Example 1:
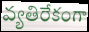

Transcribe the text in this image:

వ్యతిరేకంగా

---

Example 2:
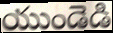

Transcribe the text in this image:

యుండెడి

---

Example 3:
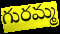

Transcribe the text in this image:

గురమ్మ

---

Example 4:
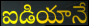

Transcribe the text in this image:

ఐడియానే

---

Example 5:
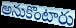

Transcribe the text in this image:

అనుకొంటారు